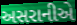
અસરાનીએ